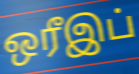
ஒரீஇப்